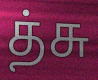
த்சு